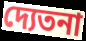
দ্যেতনা